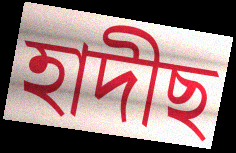
হাদীছ